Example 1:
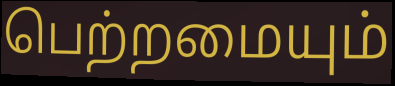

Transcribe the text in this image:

பெற்றமையும்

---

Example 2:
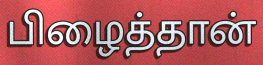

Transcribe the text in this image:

பிழைத்தான்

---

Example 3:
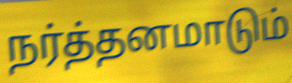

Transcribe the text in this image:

நர்த்தனமாடும்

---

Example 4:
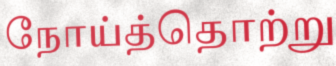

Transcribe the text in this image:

நோய்த்தொற்று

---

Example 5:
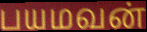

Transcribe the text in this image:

பயமவன்